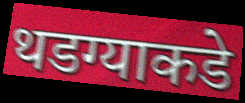
थडग्याकडे